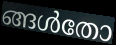
ങ്ങൾതോ